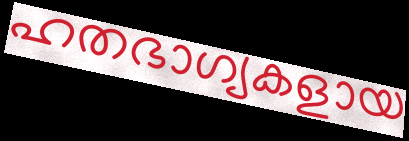
ഹതഭാഗ്യകളായ